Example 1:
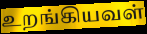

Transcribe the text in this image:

உறங்கியவள்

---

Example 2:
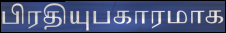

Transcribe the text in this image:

பிரதியுபகாரமாக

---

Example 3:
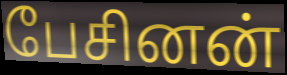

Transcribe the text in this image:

பேசினன்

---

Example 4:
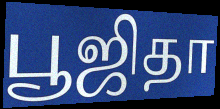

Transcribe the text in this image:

பூஜிதா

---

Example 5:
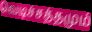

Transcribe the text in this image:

வெடிச்சத்தமும்